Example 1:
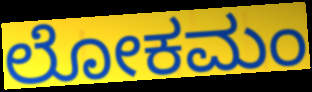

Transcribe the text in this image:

ಲೋಕಮಂ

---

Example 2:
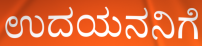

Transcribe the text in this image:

ಉದಯನನಿಗೆ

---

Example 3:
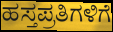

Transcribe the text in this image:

ಹಸ್ತಪ್ರತಿಗಳಿಗೆ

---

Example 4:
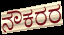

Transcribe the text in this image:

ನೌಕರರ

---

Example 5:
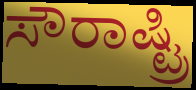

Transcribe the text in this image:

ಸೌರಾಷ್ಟ್ರಿ